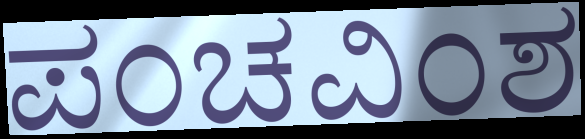
ಪಂಚವಿಂಶ